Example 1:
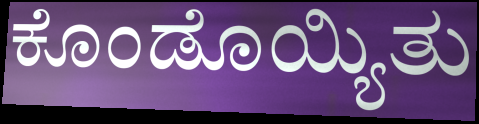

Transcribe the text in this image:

ಕೊಂಡೊಯ್ಯಿತು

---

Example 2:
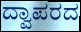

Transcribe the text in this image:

ದ್ವಾಪರದ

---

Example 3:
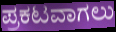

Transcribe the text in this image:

ಪ್ರಕಟವಾಗಲು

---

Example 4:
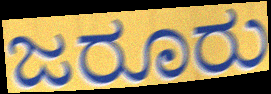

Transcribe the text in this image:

ಜರೂರು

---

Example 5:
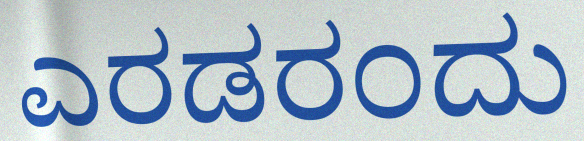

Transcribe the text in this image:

ಎರಡರಂದು